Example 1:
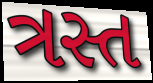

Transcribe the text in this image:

ત્રસ્ત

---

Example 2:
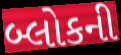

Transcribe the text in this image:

બ્લોકની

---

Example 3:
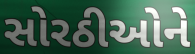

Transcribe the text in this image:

સોરઠીઓને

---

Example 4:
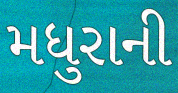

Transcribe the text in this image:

મધુરાની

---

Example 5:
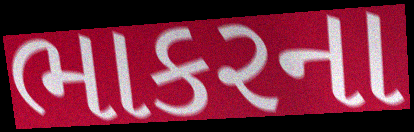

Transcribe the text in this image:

ભાકરના